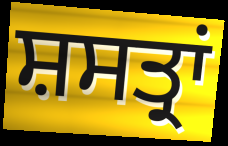
ਸ਼ਸਤ੍ਰਾਂ